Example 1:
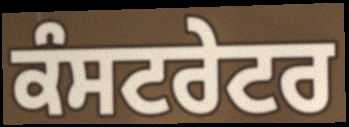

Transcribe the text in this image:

ਕੰਸਟਰੇਟਰ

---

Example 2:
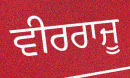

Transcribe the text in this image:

ਵੀਰਰਾਜੂ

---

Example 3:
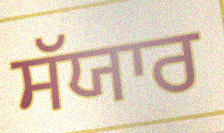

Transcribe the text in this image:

ਸੱਯਾਰ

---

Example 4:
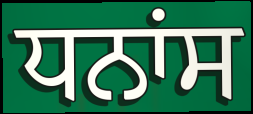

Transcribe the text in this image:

ਧਨਾਂਸ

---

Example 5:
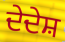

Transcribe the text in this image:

ਦੇਦੇਸ਼